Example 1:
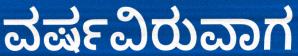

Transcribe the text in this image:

ವರ್ಷವಿರುವಾಗ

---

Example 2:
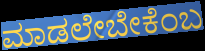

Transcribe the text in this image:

ಮಾಡಲೇಬೇಕೆಂಬ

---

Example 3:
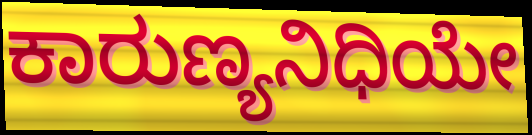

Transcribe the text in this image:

ಕಾರುಣ್ಯನಿಧಿಯೇ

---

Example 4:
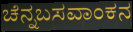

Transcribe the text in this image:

ಚೆನ್ನಬಸವಾಂಕನ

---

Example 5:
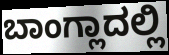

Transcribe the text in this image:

ಬಾಂಗ್ಲಾದಲ್ಲಿ